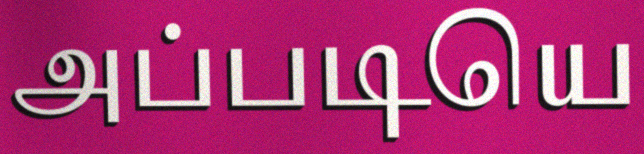
அப்படியெ